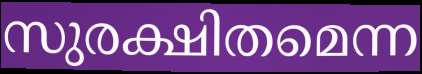
സുരക്ഷിതമെന്ന